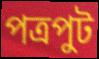
পত্রপুট